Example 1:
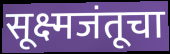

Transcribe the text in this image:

सूक्ष्मजंतूचा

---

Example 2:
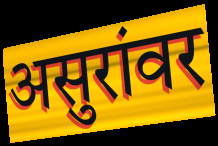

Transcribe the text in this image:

असुरांवर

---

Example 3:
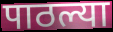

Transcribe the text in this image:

पाठल्या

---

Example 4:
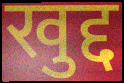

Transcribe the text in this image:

खुद्द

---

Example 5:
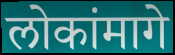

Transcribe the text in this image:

लोकांमागे